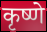
कृष्णे